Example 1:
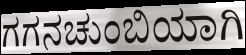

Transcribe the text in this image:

ಗಗನಚುಂಬಿಯಾಗಿ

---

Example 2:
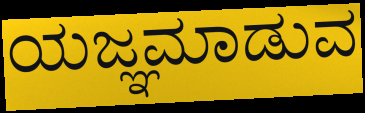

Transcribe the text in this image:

ಯಜ್ಞಮಾಡುವ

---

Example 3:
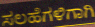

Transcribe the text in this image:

ಸಲಹೆಗಳಿಗಾಗಿ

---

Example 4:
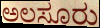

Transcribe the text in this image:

ಅಲಸೂರು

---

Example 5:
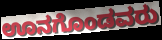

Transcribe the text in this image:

ಊನಗೊಂಡವರು